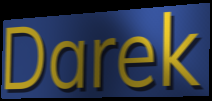
Darek